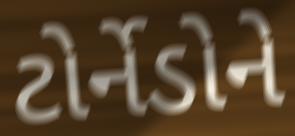
ટોર્નેડોને